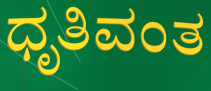
ಧೃತಿವಂತ